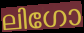
ലിഗോ